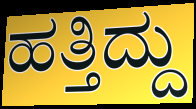
ಹತ್ತಿದ್ದು